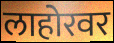
लाहोरवर